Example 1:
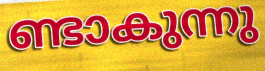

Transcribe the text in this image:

ണ്ടാകുന്നു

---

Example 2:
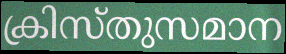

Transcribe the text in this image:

ക്രിസ്തുസമാന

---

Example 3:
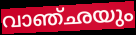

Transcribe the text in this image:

വാഞ്ഛയും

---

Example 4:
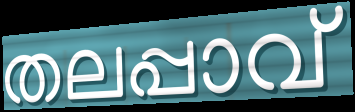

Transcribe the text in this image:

തലപ്പാവ്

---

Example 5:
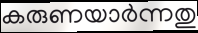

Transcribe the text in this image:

കരുണയാർന്നതു